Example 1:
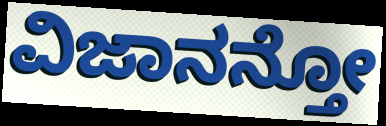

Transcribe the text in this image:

ವಿಜಾನನ್ತೋ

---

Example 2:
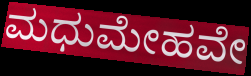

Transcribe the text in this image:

ಮಧುಮೇಹವೇ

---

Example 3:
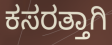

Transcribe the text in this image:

ಕಸರತ್ತಾಗಿ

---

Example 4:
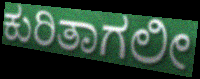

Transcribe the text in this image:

ಕುರಿತಾಗಲೀ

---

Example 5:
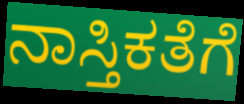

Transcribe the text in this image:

ನಾಸ್ತಿಕತೆಗೆ